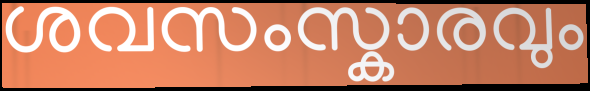
ശവസംസ്കാരവും